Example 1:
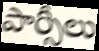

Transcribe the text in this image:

పార్సీలు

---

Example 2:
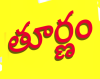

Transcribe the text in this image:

తూర్ణం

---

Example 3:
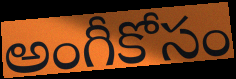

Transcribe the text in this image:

అంగీకోసం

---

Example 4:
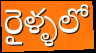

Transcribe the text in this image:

రైళ్ళలో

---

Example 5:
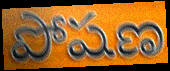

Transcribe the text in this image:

పోషణ